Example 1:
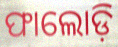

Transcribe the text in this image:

ଫାଲୋଡ଼ି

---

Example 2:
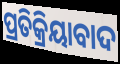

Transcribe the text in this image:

ପ୍ରତିକ୍ରିୟାବାଦ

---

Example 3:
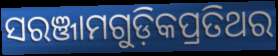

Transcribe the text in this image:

ସରଞ୍ଜାମଗୁଡ଼ିକପ୍ରତିଥର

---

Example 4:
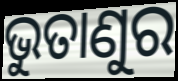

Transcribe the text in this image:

ଭୁତାଣୁର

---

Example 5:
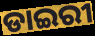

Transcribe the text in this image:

ଡାଇରୀ